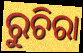
ରୁଚିରା